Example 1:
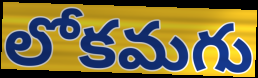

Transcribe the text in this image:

లోకమగు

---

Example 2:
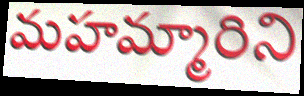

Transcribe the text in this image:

మహమ్మారిని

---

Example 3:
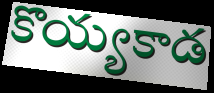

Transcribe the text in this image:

కొయ్యకాడ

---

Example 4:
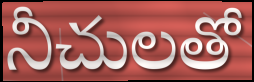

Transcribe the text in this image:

నీచులతో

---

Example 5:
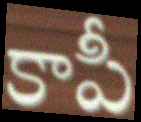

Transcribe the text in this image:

కాపీ